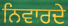
ਨਿਵਾਰਦੇ